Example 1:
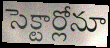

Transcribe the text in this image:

సెక్టార్లోనూ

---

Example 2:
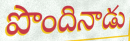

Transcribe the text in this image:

పొందినాడు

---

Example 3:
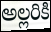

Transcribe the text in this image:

అల్లరికి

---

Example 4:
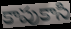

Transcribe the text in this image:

కాపుకాసి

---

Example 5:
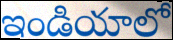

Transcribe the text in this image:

ఇండియాలో